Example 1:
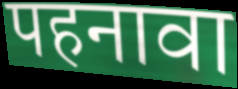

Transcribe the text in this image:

पहनावा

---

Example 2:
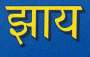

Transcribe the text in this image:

झाय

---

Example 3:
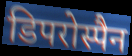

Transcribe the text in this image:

डिपरोस्पैन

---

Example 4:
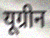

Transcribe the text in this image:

यूग्रीन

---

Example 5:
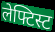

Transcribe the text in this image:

लेफ्टिस्ट